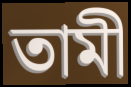
তামী